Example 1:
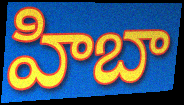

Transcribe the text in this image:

హిబా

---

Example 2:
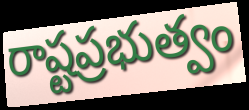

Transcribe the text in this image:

రాష్టప్రభుత్వం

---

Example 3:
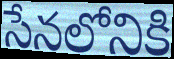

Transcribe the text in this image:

సేనలోనికి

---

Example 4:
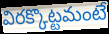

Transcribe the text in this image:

విరక్కొట్టమంటే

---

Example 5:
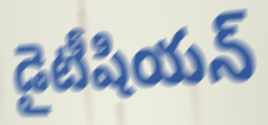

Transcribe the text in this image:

డైటీషియన్